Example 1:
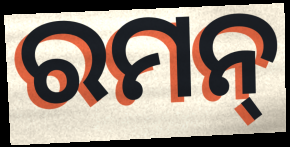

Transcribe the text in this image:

ରମନ୍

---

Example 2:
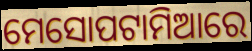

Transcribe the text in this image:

ମେସୋପଟାମିଆରେ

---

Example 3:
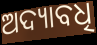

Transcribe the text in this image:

ଅଦ୍ୟାବଧି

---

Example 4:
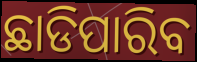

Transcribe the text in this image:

ଛାଡିପାରିବ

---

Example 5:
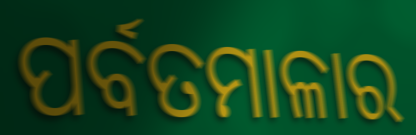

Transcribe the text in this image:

ପର୍ବତମାଳାର